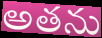
అతను